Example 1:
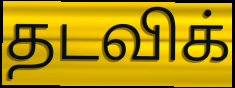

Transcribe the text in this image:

தடவிக்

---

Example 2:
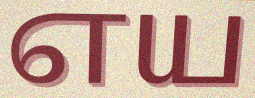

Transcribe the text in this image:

எய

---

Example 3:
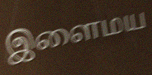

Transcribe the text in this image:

இளைமய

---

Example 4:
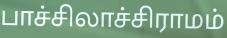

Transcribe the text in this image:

பாச்சிலாச்சிராமம்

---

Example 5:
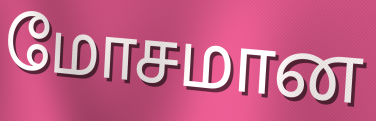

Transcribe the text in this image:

மோசமான